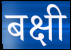
बक्षी